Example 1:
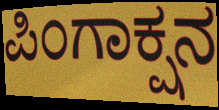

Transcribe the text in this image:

ಪಿಂಗಾಕ್ಷನ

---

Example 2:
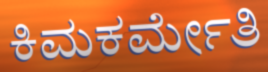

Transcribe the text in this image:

ಕಿಮಕರ್ಮೇತಿ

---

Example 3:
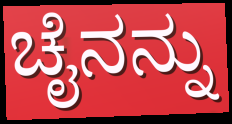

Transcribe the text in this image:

ಚೈನನ್ನು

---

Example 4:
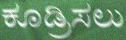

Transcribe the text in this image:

ಕೂಡ್ರಿಸಲು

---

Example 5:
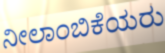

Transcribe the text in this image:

ನೀಲಾಂಬಿಕೆಯರು